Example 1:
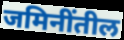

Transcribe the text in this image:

जमिनींतील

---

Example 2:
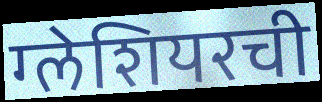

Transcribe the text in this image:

ग्लेशियरची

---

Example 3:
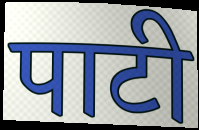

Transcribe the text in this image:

पाटी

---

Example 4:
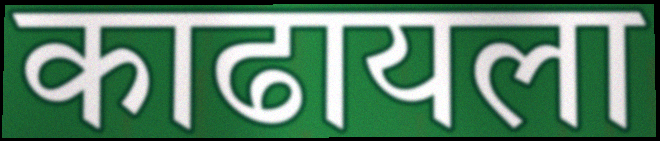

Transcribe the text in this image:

काढायला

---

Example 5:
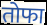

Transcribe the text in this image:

तोफा